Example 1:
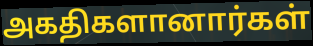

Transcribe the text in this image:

அகதிகளானார்கள்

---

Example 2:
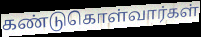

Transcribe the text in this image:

கண்டுகொள்வார்கள்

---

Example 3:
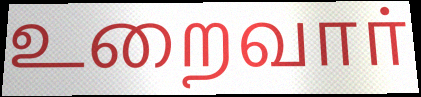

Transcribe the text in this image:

உறைவார்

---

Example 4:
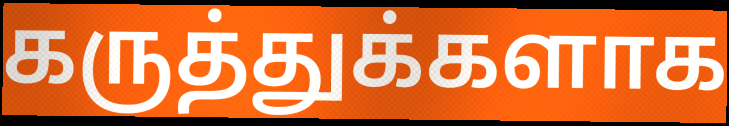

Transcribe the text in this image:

கருத்துக்களாக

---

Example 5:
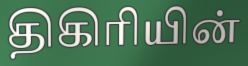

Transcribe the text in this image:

திகிரியின்